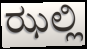
ಝಲ್ಲಿ